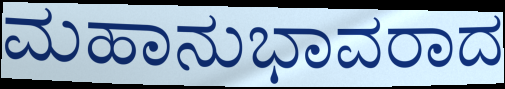
ಮಹಾನುಭಾವರಾದ